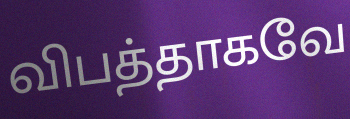
விபத்தாகவே